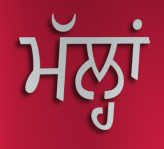
ਮੱਲ੍ਹਾਂ